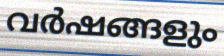
വർഷങ്ങളും